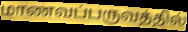
மாணவப்பருவத்தில்